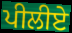
ਪੀਲੀਏ